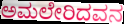
ಅಮಲೇರಿದವನ